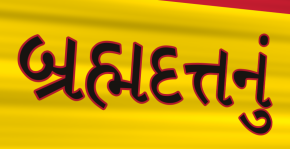
બ્રહ્મદત્તનું